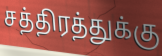
சத்திரத்துக்கு